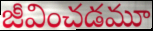
జీవించడమూ